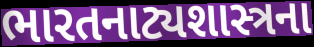
ભારતનાટ્યશાસ્ત્રના